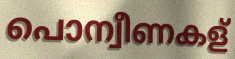
പൊന്വീണകള്